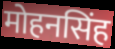
मोहनसिंह